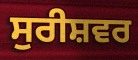
ਸੁਰੀਸ਼ਵਰ